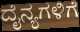
ದೈನ್ಯಗಳಿಗೆ